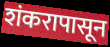
शंकरापासून